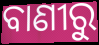
ବାଣୀରୁ